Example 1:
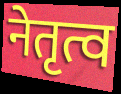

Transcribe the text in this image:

नेतृत्‍व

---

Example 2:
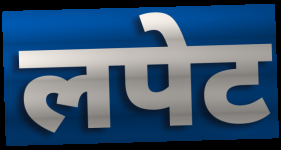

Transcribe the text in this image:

लपेट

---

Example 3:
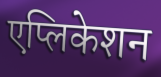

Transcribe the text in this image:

एप्लिकेशन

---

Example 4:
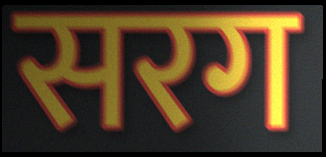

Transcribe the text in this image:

सरग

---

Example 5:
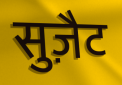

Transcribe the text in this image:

सुज़ैट